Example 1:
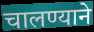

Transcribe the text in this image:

चालण्याने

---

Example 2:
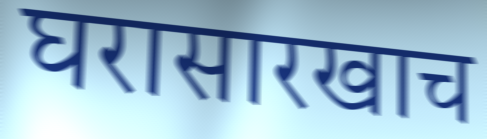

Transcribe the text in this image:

घरासारखाच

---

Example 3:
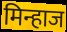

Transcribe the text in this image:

मिन्हाज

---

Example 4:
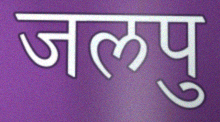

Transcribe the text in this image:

जलपु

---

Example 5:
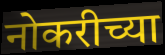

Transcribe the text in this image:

नोकरीच्या